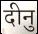
दीनु